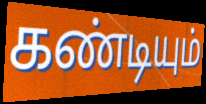
கண்டியும்